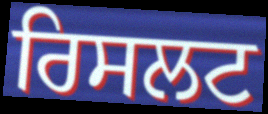
ਰਿਸਲਟ